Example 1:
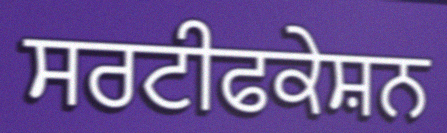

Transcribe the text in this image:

ਸਰਟੀਫਕੇਸ਼ਨ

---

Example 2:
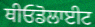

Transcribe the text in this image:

ਥੀਓਡੋਲਾਈਟ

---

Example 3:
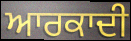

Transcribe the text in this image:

ਆਰਕਾਦੀ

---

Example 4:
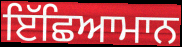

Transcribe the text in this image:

ਇੱਛਿਆਮਾਨ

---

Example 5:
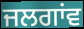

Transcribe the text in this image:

ਜਲਗਾਂਵ